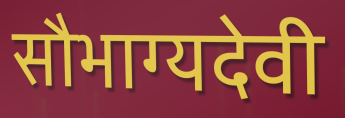
सौभाग्यदेवी